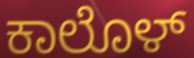
ಕಾಲೊಳ್